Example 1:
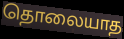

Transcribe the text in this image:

தொலையாத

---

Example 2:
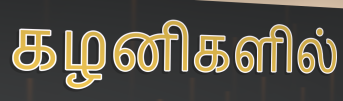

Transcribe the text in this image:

கழனிகளில்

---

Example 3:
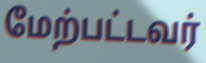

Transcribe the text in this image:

மேற்பட்டவர்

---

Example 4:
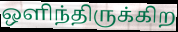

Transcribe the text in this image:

ஒளிந்திருக்கிற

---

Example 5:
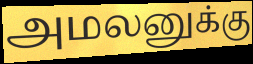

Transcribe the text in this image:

அமலனுக்கு